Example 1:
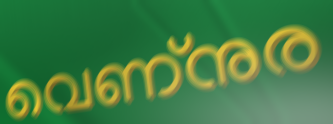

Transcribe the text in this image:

വെണ്നുര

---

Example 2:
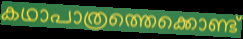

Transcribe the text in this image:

കഥാപാത്രത്തെക്കൊണ്ട്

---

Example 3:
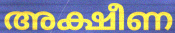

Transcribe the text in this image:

അക്ഷീണ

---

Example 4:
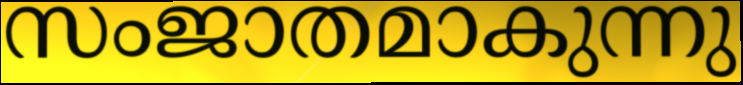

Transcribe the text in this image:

സംജാതമാകുന്നു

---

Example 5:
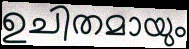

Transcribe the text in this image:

ഉചിതമായും